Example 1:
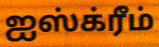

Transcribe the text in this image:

ஐஸ்க்ரீம்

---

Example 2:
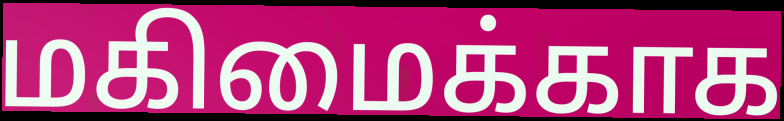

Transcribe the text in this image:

மகிமைக்காக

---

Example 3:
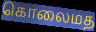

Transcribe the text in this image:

கொலைமத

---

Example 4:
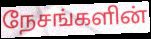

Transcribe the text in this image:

நேசங்களின்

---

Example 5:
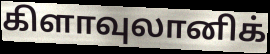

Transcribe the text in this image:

கிளாவுலானிக்